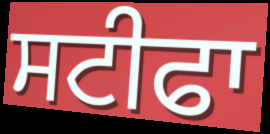
ਸਟੀਫਾ